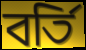
বৰ্তি